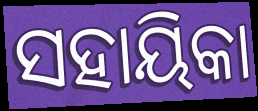
ସହାୟିକା